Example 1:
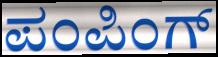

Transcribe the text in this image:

ಪಂಪಿಂಗ್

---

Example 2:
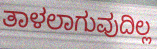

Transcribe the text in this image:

ತಾಳಲಾಗುವುದಿಲ್ಲ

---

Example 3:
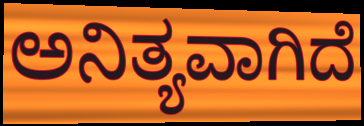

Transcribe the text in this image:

ಅನಿತ್ಯವಾಗಿದೆ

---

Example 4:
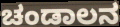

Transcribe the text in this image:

ಚಂಡಾಲನ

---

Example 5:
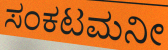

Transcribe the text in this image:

ಸಂಕಟಮನೀ